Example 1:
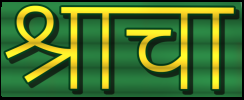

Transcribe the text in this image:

श्राचा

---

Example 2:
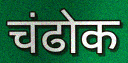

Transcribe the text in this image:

चंढोक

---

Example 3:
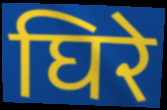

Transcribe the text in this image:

घिरे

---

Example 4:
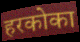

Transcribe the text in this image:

हरकोका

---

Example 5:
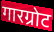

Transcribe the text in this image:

गारग्रोट